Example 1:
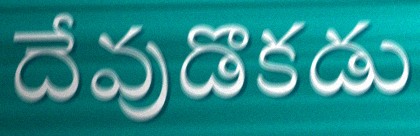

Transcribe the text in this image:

దేవుడొకడు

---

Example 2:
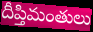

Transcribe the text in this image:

దీప్తిమంతులు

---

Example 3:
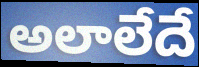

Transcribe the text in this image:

అలాలేదే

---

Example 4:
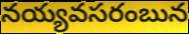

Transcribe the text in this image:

నయ్యవసరంబున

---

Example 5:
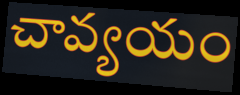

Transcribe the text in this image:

చావ్యయం